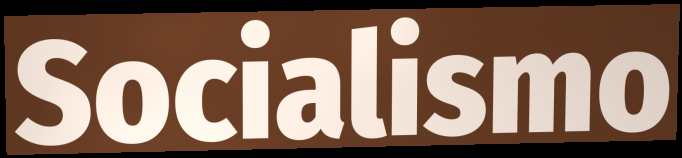
Socialismo